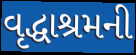
વૃદ્ધાશ્રમની